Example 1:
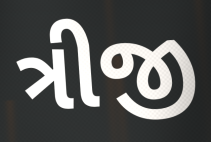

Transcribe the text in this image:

ત્રીજી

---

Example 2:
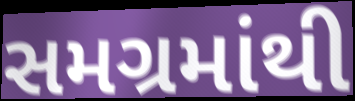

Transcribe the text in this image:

સમગ્રમાંથી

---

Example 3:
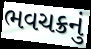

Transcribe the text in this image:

ભવચક્રનું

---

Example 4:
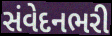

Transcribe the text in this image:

સંવેદનભરી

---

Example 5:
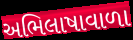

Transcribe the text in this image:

અભિલાષાવાળા